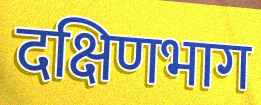
दक्षिणभाग